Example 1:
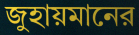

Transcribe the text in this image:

জুহায়মানের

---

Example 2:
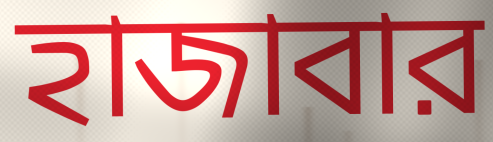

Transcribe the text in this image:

হাজাবার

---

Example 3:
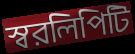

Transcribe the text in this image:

স্বরলিপিটি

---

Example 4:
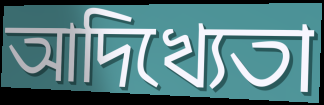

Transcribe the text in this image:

আদিখ্যেতা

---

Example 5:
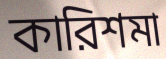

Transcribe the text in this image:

কারিশমা